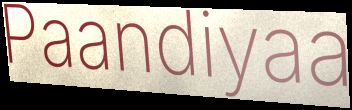
Paandiyaa